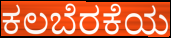
ಕಲಬೆರಕೆಯ